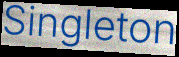
Singleton